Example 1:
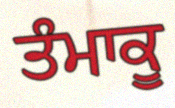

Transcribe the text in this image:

ਤੰਮਾਕੂ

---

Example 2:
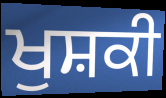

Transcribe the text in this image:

ਖੁਸ਼ਕੀ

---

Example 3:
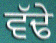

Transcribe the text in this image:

ਵੱਢੇ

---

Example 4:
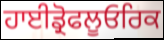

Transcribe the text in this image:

ਹਾਈਡ੍ਰੋਫਲੂਓਰਿਕ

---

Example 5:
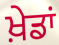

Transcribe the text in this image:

ਖ਼ੇਡਾਂ